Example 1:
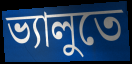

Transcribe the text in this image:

ভ্যালুতে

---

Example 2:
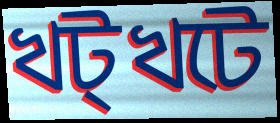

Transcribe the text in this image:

খট্‌খটে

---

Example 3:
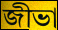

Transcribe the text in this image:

জীভা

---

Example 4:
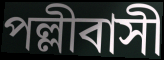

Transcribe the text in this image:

পল্লীবাসী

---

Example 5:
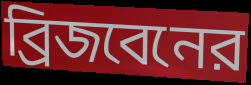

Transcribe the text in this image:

ব্রিজবেনের